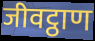
जीवट्ठाण